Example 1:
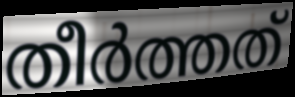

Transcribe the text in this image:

തീർത്തത്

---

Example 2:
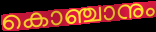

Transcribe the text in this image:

കൊഞ്ചാനും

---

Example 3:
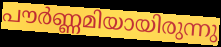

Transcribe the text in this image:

പൗർണ്ണമിയായിരുന്നു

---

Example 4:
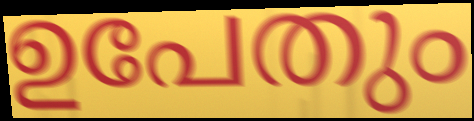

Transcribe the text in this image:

ഉപേതും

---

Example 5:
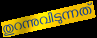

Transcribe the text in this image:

തുറന്നുവിടുന്നത്